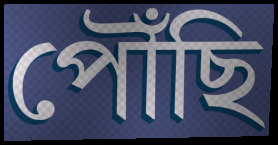
পৌঁছি